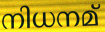
നിധനമ്